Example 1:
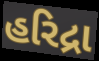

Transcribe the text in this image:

હરિદ્રા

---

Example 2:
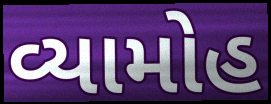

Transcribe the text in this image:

વ્યામોહ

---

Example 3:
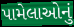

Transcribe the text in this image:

પામેલાઓનું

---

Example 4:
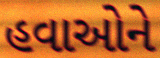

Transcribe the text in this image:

હવાઓને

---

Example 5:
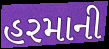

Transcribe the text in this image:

હરમાની